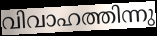
വിവാഹത്തിന്നു